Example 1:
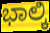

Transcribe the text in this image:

ಭಾಲ್ಕಿ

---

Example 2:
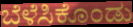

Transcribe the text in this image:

ಬೆಳೆಸಿಕೊಂಡು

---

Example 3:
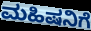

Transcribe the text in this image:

ಮಹಿಷನಿಗೆ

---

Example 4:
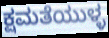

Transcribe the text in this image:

ಕ್ಷಮತೆಯುಳ್ಳ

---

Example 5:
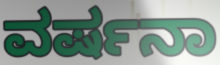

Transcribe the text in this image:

ವರ್ಷನಾ